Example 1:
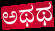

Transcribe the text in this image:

ಅಥಥ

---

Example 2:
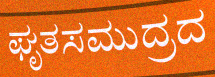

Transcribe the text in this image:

ಘೃತಸಮುದ್ರದ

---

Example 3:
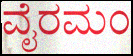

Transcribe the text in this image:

ವೈರಮಂ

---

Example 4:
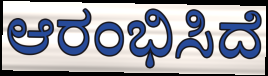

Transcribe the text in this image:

ಆರಂಭಿಸಿದೆ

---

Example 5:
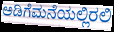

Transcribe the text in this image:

ಅಡಿಗೆಮನೆಯಲ್ಲಿರಲಿ